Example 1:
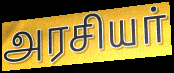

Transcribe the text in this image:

அரசியர்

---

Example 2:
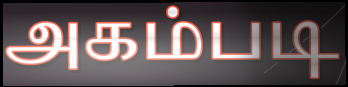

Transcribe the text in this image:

அகம்படி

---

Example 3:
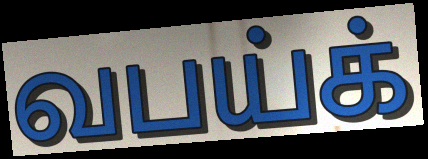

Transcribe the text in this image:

வபய்க்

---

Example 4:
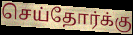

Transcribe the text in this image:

செய்தோர்க்கு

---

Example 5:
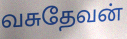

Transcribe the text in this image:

வசுதேவன்